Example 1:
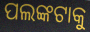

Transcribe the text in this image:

ପଲଙ୍କଟାକୁ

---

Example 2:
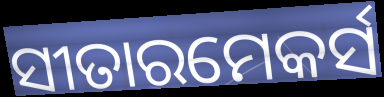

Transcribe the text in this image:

ସୀତାରମେକର୍ସ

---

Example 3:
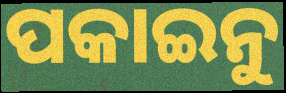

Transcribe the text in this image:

ପକାଇନୁ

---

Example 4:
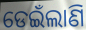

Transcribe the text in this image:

ଡେଇଁଲାଣି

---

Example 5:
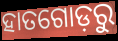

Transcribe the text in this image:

ହାତଗୋଡ଼ରୁ